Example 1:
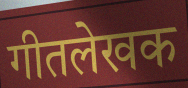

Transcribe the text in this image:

गीतलेखक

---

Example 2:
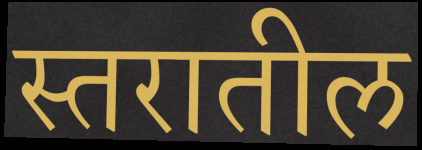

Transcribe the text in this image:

स्तरातील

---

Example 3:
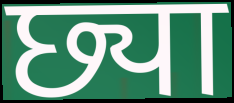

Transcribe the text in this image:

छ्या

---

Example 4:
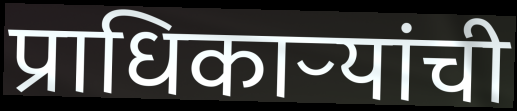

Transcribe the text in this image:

प्राधिकाऱ्यांची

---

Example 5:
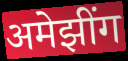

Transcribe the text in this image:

अमेझींग